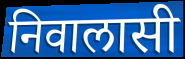
निवालासी